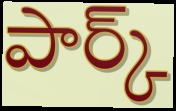
పార్క్